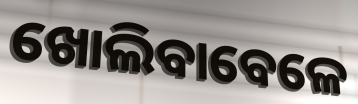
ଖୋଲିବାବେଳେ